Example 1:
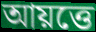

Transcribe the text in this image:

আয়ত্তে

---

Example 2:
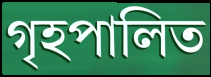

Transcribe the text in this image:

গৃহপালিত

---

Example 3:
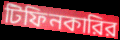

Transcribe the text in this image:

টিফিনকারির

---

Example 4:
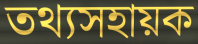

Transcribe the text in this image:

তথ্যসহায়ক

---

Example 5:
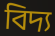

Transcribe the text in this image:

বিদ্য